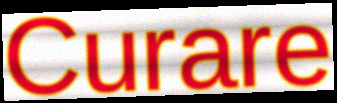
Curare